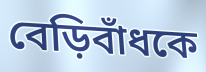
বেড়িবাঁধকে